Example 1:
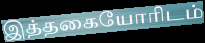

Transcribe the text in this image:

இத்தகையோரிடம்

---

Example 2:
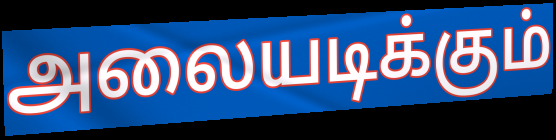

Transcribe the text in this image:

அலையடிக்கும்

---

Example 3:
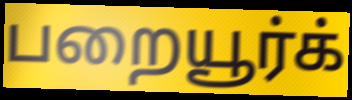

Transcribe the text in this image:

பறையூர்க்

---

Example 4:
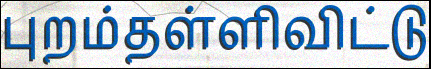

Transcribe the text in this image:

புறம்தள்ளிவிட்டு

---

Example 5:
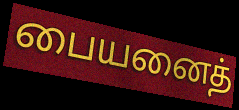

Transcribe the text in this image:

பையனைத்